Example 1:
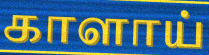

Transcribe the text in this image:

காளாய்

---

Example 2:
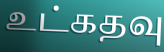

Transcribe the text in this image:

உட்கதவு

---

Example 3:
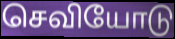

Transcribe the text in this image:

செவியோடு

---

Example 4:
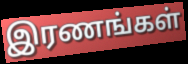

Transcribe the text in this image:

இரணங்கள்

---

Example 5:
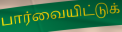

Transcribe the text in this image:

பார்வையிட்டுக்